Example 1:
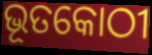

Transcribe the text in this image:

ଭୂତକୋଠୀ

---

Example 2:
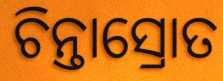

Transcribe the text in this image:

ଚିନ୍ତାସ୍ରୋତ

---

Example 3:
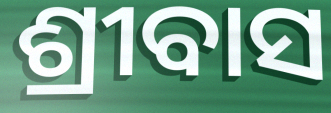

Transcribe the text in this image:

ଶ୍ରୀବାସ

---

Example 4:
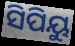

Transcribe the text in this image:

ସିପିୟୁ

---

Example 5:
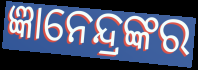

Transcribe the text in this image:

ଜ୍ଞାନେନ୍ଦ୍ରଙ୍କର